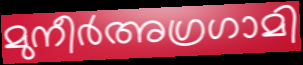
മുനീർഅഗ്രഗാമി